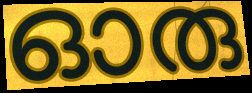
ഓരു